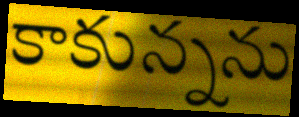
కాకున్నను